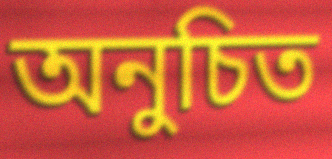
অনুচিত